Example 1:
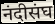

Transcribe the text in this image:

नंदीसंघ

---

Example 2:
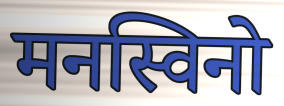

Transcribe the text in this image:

मनस्विनो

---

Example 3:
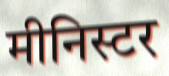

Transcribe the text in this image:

मीनिस्टर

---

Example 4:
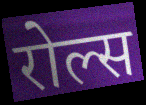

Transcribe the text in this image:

रोल्स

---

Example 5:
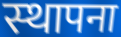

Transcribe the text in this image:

स्‍थापना